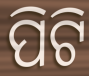
ପିଟି